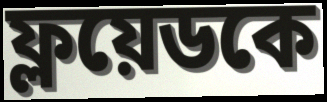
ফ্লয়েডকে